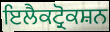
ਇਲੈਕਟ੍ਰੋਕਸ਼ਨ